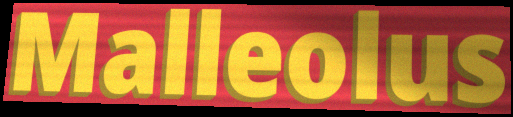
Malleolus